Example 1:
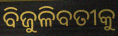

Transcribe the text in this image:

ବିଜୁଳିବତୀକୁ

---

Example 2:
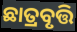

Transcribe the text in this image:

ଛାତ୍ରବୃତ୍ତି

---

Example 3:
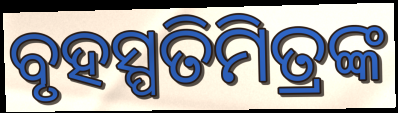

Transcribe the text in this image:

ବୃହସ୍ପତିମିତ୍ରଙ୍କ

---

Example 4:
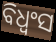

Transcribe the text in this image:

ବିଧ୍ଵଂସ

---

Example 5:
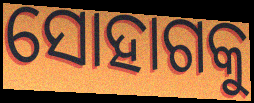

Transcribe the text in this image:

ସୋହାଗକୁ